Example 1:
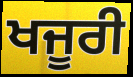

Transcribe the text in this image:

ਖਜੂਰੀ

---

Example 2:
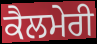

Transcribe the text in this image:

ਕੈਲਮੇਰੀ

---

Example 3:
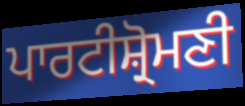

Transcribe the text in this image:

ਪਾਰਟੀਸ਼੍ਰੋਮਣੀ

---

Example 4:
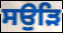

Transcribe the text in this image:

ਸਉੜਿ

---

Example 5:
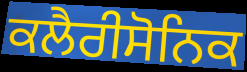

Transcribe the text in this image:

ਕਲੈਰੀਸੋਨਿਕ